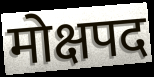
मोक्षपद